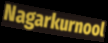
Nagarkurnool